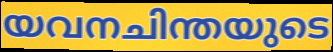
യവനചിന്തയുടെ